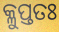
କ୍ଳୁପ୍ତତଃ